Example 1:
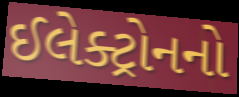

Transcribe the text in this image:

ઈલેક્ટ્રોનનો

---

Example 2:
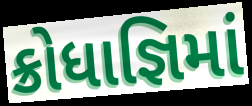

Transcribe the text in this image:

ક્રોધાજ્ઞિમાં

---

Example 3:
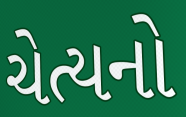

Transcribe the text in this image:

ચેત્યનો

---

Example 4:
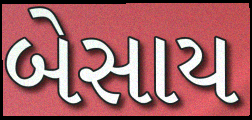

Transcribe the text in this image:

બેસાય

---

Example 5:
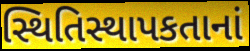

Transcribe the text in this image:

સ્થિતિસ્થાપકતાનાં